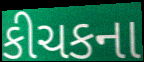
કીચકના